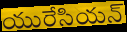
యురేసియన్